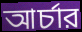
আর্চার